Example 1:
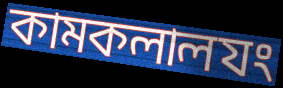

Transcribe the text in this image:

কামকলালযং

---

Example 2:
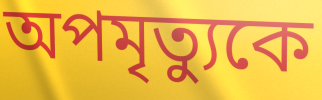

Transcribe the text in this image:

অপমৃত্যুকে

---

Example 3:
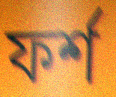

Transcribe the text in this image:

ফর্শ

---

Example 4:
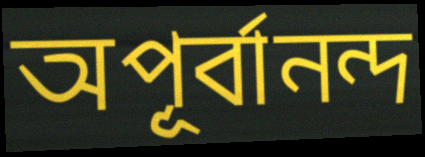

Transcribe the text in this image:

অপূর্বানন্দ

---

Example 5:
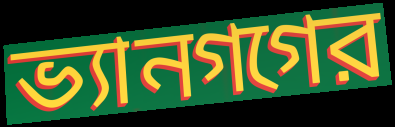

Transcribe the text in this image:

ভ্যানগগের